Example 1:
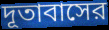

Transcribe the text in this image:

দূতাবাসের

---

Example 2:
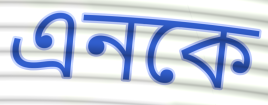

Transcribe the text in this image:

এনকে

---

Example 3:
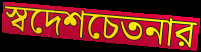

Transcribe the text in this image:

স্বদেশচেতনার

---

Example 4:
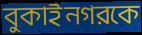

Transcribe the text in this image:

বুকাইনগরকে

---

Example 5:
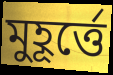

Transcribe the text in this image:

মুহূর্ত্তে